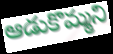
ఆడుకొమ్మని